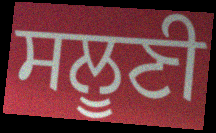
ਸਲੂਣੀ